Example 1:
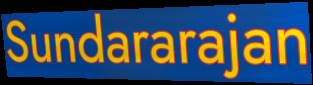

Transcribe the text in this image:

Sundararajan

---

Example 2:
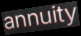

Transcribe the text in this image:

annuity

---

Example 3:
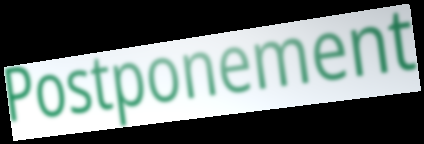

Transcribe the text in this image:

Postponement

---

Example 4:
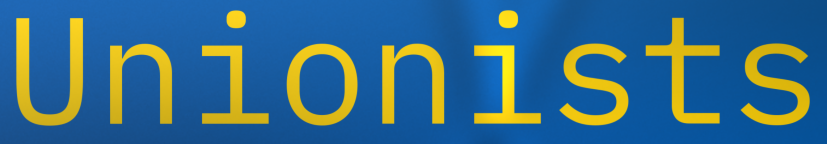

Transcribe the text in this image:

Unionists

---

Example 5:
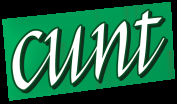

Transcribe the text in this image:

cunt